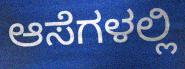
ಆಸೆಗಳಲ್ಲಿ